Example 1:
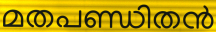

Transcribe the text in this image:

മതപണ്ഡിതൻ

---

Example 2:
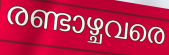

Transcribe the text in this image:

രണ്ടാഴ്ചവരെ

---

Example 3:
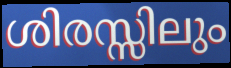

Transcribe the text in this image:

ശിരസ്സിലും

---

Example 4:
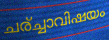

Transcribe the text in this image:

ചര്ച്ചാവിഷയം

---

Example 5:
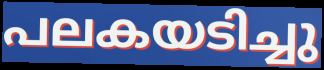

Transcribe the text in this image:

പലകയടിച്ചു